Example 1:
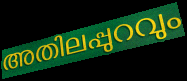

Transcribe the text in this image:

അതിലപ്പുറവും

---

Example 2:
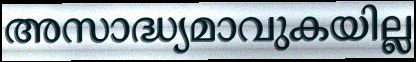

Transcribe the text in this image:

അസാദ്ധ്യമാവുകയില്ല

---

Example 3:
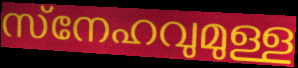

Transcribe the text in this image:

സ്‌നേഹവുമുള്ള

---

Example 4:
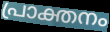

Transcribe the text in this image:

പ്രാക്തനം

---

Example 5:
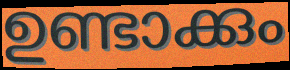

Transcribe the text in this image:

ഉണ്ടാക്കും